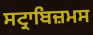
ਸਟ੍ਰਾਬਿਜ਼ਮਸ